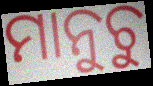
ମାନୁଚୁ